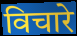
विचारे